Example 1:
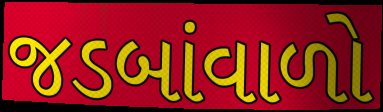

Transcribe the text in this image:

જડબાંવાળો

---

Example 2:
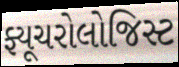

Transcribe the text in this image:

ફ્યૂચરોલોજિસ્ટ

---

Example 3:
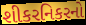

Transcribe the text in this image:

શીકરનિકરનો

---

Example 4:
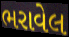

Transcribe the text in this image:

ભરાવેલ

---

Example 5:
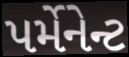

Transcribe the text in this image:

પર્મેનેન્ટ